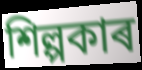
শিল্পকাৰ